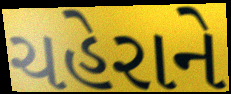
ચહેરાને